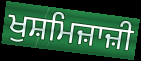
ਖੁਸ਼ਮਿਜ਼ਾਜ਼ੀ